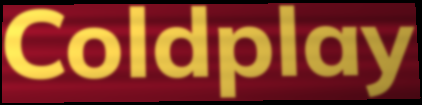
Coldplay